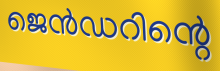
ജെൻഡറിന്റെ